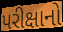
પરીક્ષાનો